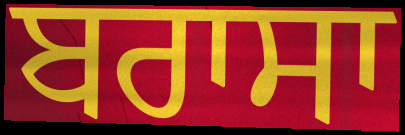
ਬਰਾਸਾ